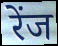
रेंज